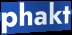
phakt